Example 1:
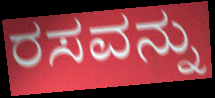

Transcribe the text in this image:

ರಸವನ್ನು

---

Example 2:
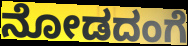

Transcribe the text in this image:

ನೋಡದಂಗೆ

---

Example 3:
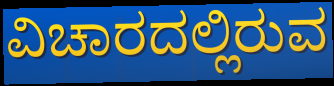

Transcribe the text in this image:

ವಿಚಾರದಲ್ಲಿರುವ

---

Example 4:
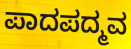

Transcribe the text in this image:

ಪಾದಪದ್ಮವ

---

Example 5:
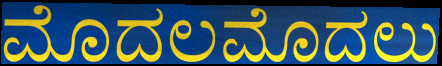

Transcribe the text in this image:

ಮೊದಲಮೊದಲು